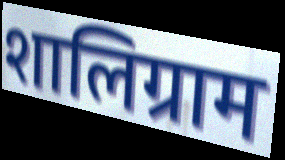
शालिग्राम